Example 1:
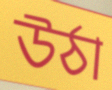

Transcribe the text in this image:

উঠা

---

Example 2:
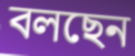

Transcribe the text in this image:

বলছেন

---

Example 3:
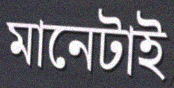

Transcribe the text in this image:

মানেটাই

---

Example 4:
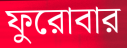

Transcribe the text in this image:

ফুরোবার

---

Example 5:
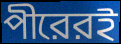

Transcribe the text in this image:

পীরেরই